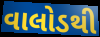
વાલોડથી